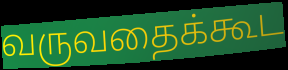
வருவதைக்கூட